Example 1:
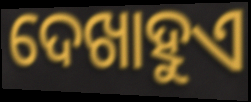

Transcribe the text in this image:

ଦେଖାହୁଏ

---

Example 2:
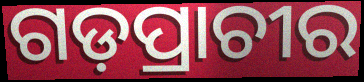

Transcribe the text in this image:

ଗଡ଼ପ୍ରାଚୀର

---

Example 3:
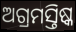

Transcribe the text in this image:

ଅଗ୍ରମସ୍ତିଷ୍କ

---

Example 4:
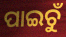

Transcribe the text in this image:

ପାଇଚୁଁ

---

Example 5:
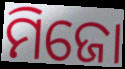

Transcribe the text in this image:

ମିଜୋ